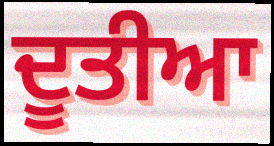
ਦੂਤੀਆ